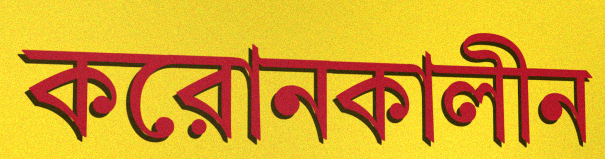
করোনকালীন